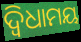
ଦ୍ୱିଧାମୟ